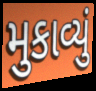
મુકાવ્યું